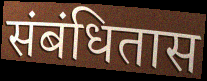
संबंधितास